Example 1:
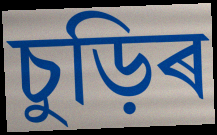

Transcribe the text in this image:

চুড়িৰ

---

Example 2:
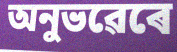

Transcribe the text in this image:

অনুভৱেৰে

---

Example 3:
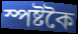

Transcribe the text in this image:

স্পষ্টকৈ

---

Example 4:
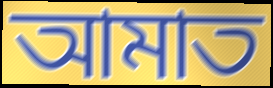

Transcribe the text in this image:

আমাত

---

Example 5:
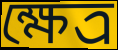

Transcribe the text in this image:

ক্ষেত্ৰ